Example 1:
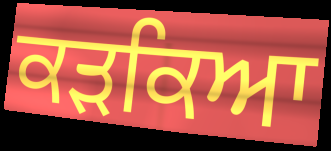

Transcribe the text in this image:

ਕੜਕਿਆ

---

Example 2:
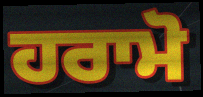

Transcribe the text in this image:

ਹਰਾਮੋ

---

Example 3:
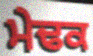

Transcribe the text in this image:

ਮੇਢਕ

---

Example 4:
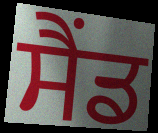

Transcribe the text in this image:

ਸੈਂਡ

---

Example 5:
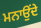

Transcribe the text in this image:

ਮਨਾਉਂਦੇ